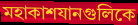
মহাকাশযানগুলিকে